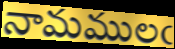
నామములఁ